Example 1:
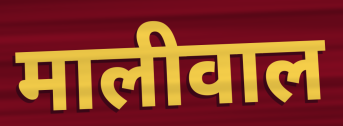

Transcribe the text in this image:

मालीवाल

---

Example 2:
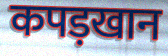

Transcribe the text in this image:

कपड़खान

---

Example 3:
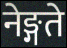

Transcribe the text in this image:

नेङ्गते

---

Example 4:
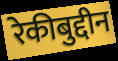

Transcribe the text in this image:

रेकीबुद्दीन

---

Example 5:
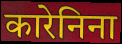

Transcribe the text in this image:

कारेनिना